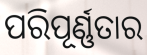
ପରିପୂର୍ଣ୍ଣତାର